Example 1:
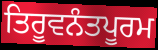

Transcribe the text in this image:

ਤਿਰੂਵਨੰਤਪੂਰਮ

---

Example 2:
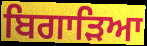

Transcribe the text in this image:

ਬਿਗਾੜਿਆ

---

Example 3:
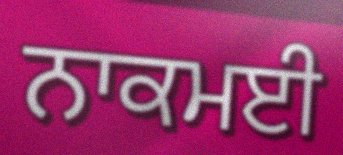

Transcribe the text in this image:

ਨਾਕਮਈ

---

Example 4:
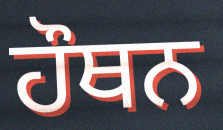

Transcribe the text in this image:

ਹੌਥਨ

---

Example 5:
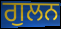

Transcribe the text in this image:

ਗੁਲਨ